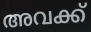
അവക്ക്